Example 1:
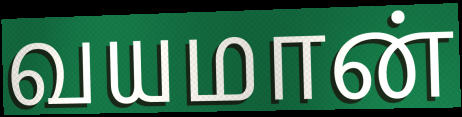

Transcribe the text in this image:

வயமான்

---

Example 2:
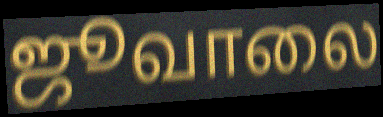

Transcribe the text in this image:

ஜூவாலை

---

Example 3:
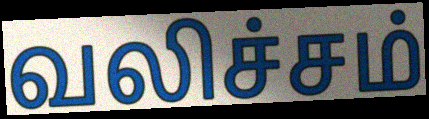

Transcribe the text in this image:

வலிச்சம்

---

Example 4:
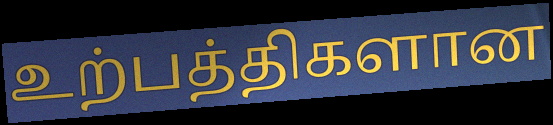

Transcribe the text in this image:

உற்பத்திகளான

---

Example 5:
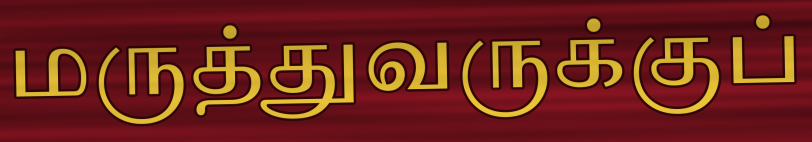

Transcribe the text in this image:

மருத்துவருக்குப்